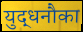
युद्धनौका